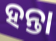
ହନ୍ତା